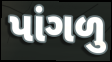
પાંગળુ